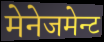
मेनेजमेन्ट